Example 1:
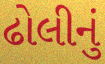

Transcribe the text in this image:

ઢોલીનું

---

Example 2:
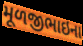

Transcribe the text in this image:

મૂળજીભાઇના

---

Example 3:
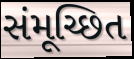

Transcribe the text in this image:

સંમૂચ્છિત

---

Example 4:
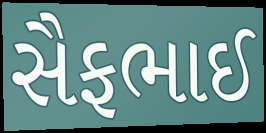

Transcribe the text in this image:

સૈફભાઈ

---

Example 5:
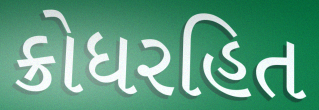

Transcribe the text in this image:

ક્રોધરહિત